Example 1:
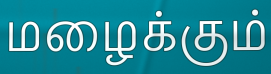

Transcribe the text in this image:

மழைக்கும்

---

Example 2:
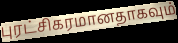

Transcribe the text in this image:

புரட்சிகரமானதாகவும்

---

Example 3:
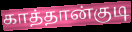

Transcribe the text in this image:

காத்தான்குடி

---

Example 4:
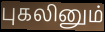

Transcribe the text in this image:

புகலினும்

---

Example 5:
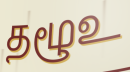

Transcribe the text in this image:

தழூஉ